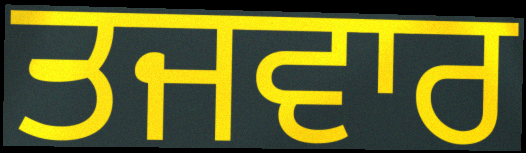
ਤਜਵਾਰ